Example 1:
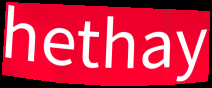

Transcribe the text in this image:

hethay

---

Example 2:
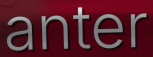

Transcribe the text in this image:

anter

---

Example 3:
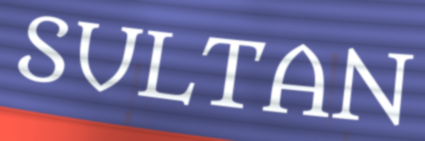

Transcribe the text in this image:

SULTAN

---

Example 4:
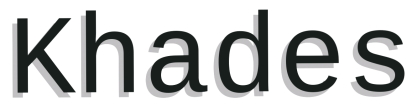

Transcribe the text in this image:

Khades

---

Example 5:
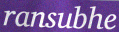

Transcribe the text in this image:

ransubhe